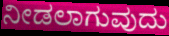
ನೀಡಲಾಗುವುದು